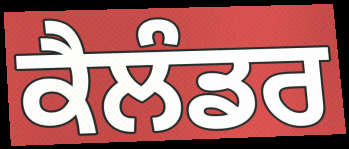
ਕੈਲੰਡਰ